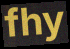
fhy